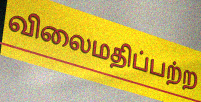
விலைமதிப்பற்ற